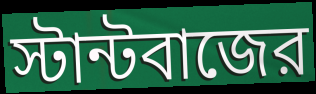
স্টান্টবাজের